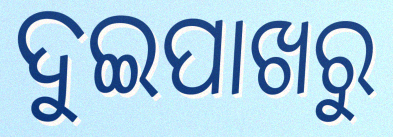
ଦୁଇପାଖରୁ